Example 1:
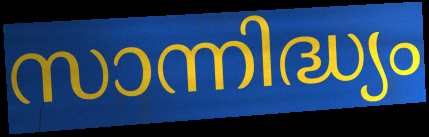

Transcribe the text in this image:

സാന്നിദ്ധ്യം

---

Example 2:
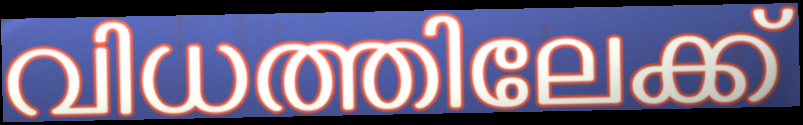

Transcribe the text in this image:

വിധത്തിലേക്ക്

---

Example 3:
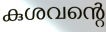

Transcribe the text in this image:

കുശവന്റെ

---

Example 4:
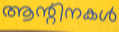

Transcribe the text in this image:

ആന്റിനകൾ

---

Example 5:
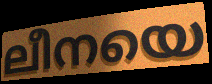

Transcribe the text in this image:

ലീനയെ